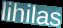
lihilas